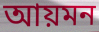
আয়মন